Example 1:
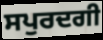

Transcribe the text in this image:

ਸਪੁਰਦਗੀ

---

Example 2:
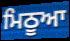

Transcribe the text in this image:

ਮਿਠੂਆ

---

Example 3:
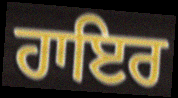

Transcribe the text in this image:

ਹਾਇਰ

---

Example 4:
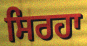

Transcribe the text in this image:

ਸਿਰਹਾ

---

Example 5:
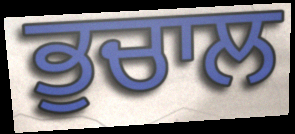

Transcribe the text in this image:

ਭੁਚਾਲ